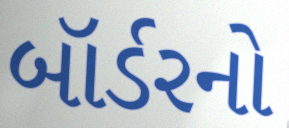
બૉર્ડરનો